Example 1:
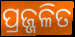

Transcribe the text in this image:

ପ୍ରଜ୍ଜଳିତ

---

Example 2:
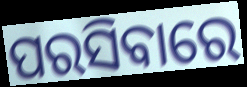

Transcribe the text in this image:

ପରସିବାରେ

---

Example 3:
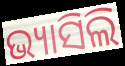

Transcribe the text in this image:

ଭ୍ୟାସିଲି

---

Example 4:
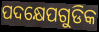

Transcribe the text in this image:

ପଦକ୍ଷେପଗୁଡିକ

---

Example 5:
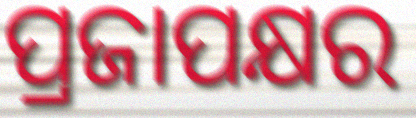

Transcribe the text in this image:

ପ୍ରଜାପକ୍ଷର